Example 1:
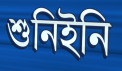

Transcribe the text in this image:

শুনিইনি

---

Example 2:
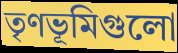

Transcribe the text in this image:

তৃণভূমিগুলো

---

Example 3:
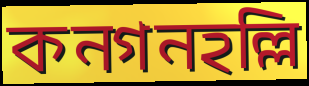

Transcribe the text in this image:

কনগনহল্লি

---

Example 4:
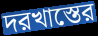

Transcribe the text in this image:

দরখাস্তের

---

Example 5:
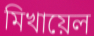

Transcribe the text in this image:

মিখায়েল